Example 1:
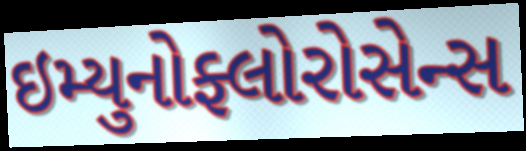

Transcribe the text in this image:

ઇમ્યુનોફ્લોરોસેન્સ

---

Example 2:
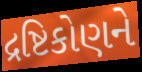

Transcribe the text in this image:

દ્રષ્ટિકોણને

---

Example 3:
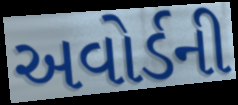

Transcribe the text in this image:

અવોર્ડની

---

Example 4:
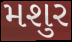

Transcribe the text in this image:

મશુર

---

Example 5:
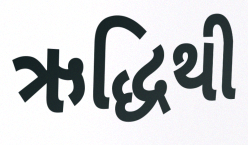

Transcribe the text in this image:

ઋદ્ધિથી